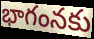
భాగంనకు